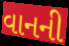
વાનની